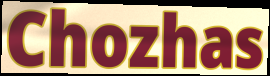
Chozhas